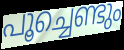
പൂച്ചെണ്ടും